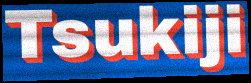
Tsukiji